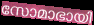
സോമാഭായി